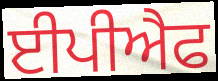
ਈਪੀਐਫ